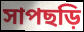
সাপছড়ি